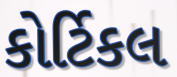
કોર્ટિકલ